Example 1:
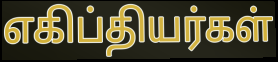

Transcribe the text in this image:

எகிப்தியர்கள்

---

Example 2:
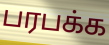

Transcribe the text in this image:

பரபக்க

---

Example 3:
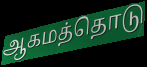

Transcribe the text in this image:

ஆகமத்தொடு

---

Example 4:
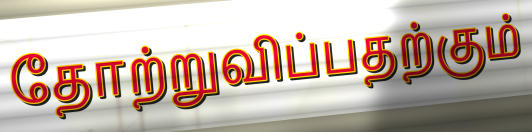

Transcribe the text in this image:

தோற்றுவிப்பதற்கும்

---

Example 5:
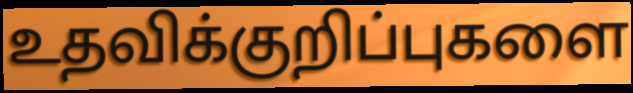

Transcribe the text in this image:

உதவிக்குறிப்புகளை